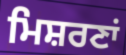
ਮਿਸ਼ਰਣਾਂ